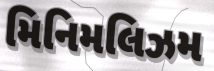
મિનિમલિઝમ